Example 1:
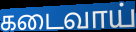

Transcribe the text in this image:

கடைவாய்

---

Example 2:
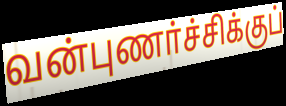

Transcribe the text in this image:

வன்புணர்ச்சிக்குப்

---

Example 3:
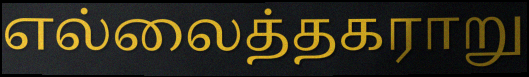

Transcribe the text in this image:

எல்லைத்தகராறு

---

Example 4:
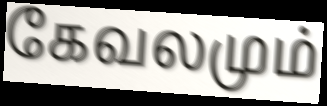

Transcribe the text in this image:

கேவலமும்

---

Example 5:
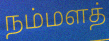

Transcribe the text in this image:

நம்மளத்